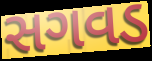
સગવડ